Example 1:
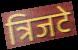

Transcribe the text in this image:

त्रिजटे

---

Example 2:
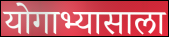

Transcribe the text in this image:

योगाभ्यासाला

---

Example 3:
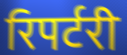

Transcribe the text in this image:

रिपर्टरी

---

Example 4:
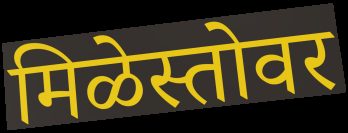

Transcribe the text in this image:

मिळेस्तोवर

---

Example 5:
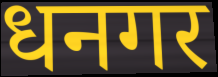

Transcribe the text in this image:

धनगर